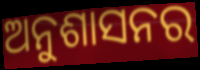
ଅନୁଶାସନର